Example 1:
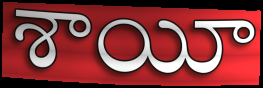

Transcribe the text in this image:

శాయీ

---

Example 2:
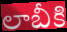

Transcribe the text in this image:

లాబీకి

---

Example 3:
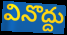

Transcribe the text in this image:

వినొద్దు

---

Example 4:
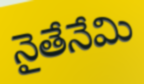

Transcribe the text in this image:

నైతేనేమి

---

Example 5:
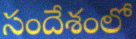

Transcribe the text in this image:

సందేశంలో